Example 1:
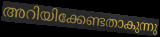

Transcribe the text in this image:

അറിയിക്കേണ്ടതാകുന്നു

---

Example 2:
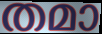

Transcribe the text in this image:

തമാ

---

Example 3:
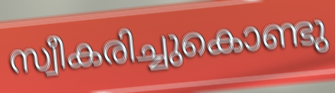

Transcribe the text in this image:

സ്വീകരിച്ചുകൊണ്ടു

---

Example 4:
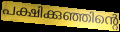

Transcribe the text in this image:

പക്ഷിക്കുഞ്ഞിന്റെ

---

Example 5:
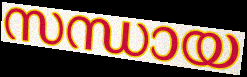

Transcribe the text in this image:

സന്ധായ